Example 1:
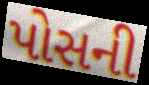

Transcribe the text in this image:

પોસની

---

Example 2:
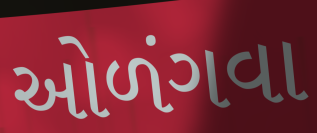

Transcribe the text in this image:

ઓળંગવા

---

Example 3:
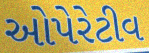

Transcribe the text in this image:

ઓપેરેટીવ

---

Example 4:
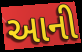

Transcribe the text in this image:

આની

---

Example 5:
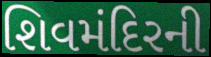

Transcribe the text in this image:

શિવમંદિરની